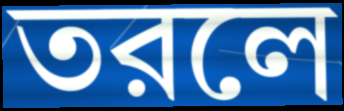
তরলে